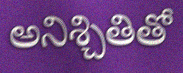
అనిశ్చితితో